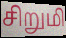
சிறுமி